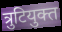
त्रुटियुक्त